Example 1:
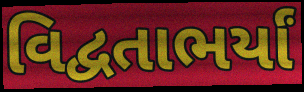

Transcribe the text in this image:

વિદ્વતાભર્યાં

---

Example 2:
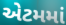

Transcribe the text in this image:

એટમમાં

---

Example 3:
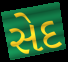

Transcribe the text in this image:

સેદ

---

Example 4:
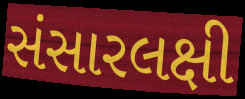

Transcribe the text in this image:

સંસારલક્ષી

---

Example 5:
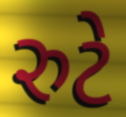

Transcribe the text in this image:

રુટે